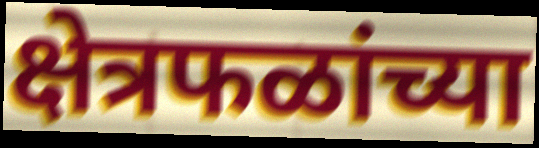
क्षेत्रफळांच्या